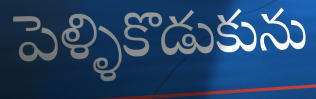
పెళ్ళికొడుకును